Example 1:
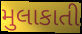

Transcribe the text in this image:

મુલાકાતી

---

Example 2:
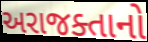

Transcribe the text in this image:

અરાજક્તાનો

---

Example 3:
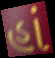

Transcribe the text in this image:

હાં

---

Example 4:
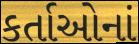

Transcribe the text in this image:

કર્તાઓનાં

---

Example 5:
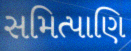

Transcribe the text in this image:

સમિત્પાણિ